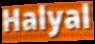
Halyal